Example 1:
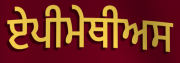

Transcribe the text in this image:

ਏਪੀਮੇਥੀਅਸ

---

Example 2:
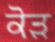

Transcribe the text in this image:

ਕੋੜ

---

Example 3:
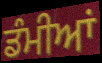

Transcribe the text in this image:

ਡੰਮੀਆਂ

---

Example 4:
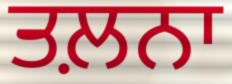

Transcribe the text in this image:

ਤਲ਼ਨਾ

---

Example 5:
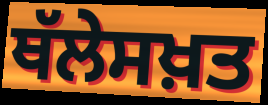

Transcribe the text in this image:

ਥੱਲੇਸਖ਼ਤ